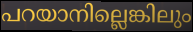
പറയാനില്ലെങ്കിലും